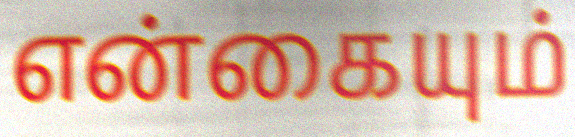
என்கையும்